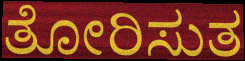
ತೋರಿಸುತ